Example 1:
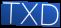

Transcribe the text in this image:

TXD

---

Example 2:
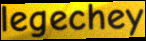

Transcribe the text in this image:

legechey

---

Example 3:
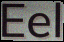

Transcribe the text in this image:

Eel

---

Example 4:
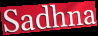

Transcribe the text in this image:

Sadhna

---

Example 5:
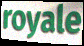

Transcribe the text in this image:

royale